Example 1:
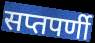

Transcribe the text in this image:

सप्तपर्णी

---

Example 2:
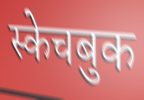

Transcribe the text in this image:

स्केचबुक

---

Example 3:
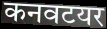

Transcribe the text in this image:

कनवटयर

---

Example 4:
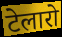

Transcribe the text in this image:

टेलारो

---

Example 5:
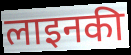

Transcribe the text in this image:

लाइनकी